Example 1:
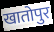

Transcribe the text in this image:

खातोपुर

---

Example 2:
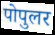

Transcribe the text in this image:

पोपुलर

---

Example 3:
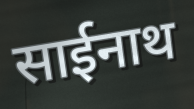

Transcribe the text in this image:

साईनाथ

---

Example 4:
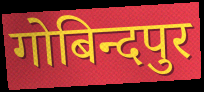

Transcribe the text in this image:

गोबिन्दपुर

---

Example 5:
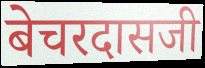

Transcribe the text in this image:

बेचरदासजी